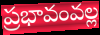
ప్రభావంవల్ల